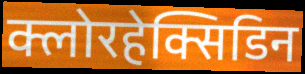
क्लोरहेक्सिडिन